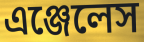
এঞ্জেলেস